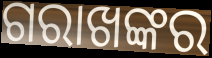
ଗରାଖଙ୍କର